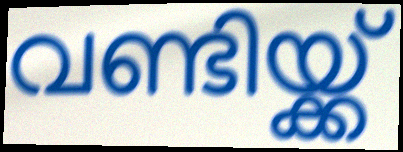
വണ്ടിയ്ക്ക്